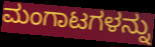
ಮಂಗಾಟಗಳನ್ನು